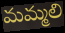
మమ్మలి